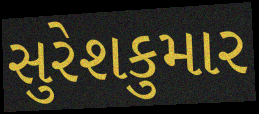
સુરેશકુમાર